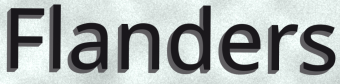
Flanders